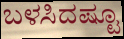
ಬಳಸಿದಷ್ಟೂ